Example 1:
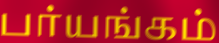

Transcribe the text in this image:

பர்யங்கம்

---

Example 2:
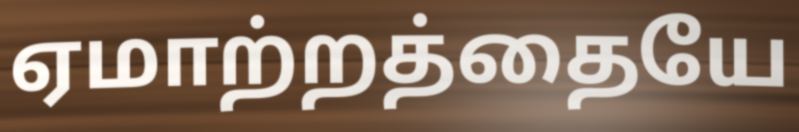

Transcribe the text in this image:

ஏமாற்றத்தையே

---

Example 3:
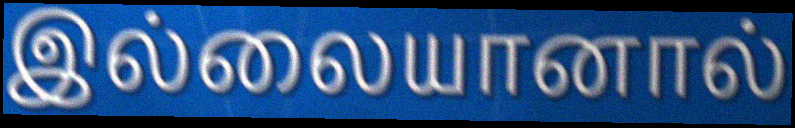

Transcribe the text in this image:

இல்லையானால்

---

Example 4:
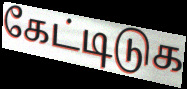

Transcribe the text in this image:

கேட்டிடுக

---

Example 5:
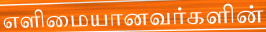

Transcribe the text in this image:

எளிமையானவர்களின்